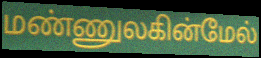
மண்ணுலகின்மேல்